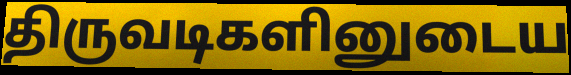
திருவடிகளினுடைய